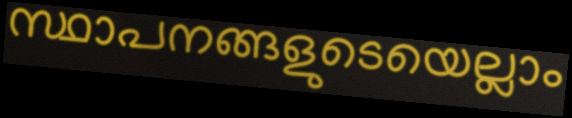
സ്ഥാപനങ്ങളുടെയെല്ലാം